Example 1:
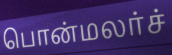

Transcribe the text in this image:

பொன்மலர்ச்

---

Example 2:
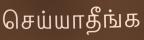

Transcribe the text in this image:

செய்யாதீங்க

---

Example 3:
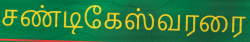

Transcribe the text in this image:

சண்டிகேஸ்வரரை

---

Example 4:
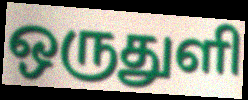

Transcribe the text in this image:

ஒருதுளி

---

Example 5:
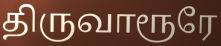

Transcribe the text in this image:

திருவாரூரே